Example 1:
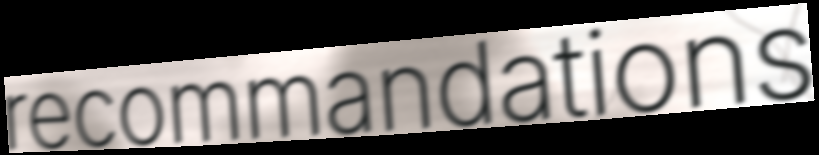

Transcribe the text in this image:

recommandations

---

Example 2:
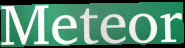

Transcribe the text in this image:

Meteor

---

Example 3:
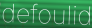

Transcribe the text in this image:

defoulid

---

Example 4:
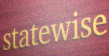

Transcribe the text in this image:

statewise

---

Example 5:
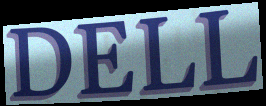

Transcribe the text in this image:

DELL